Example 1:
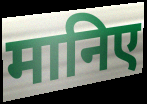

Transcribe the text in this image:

मानिए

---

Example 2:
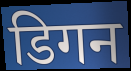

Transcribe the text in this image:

डिगन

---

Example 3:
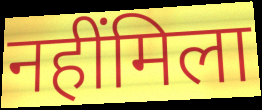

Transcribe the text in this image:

नहींमिला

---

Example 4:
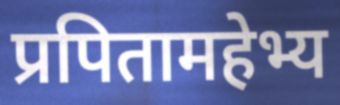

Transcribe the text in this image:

प्रपितामहेभ्य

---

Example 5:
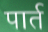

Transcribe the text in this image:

पार्त